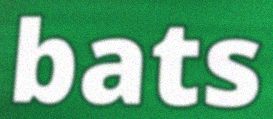
bats